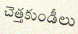
చెత్తకుండీలు